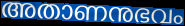
അതാണനുഭവം